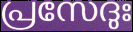
പ്രസേദുഃ